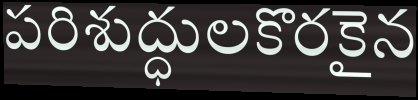
పరిశుద్ధులకొరకైన